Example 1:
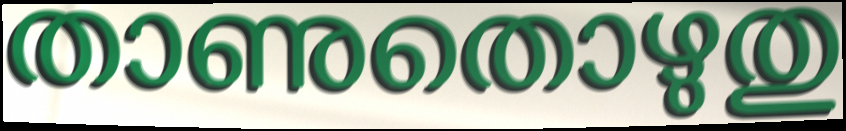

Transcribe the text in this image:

താണുതൊഴുതു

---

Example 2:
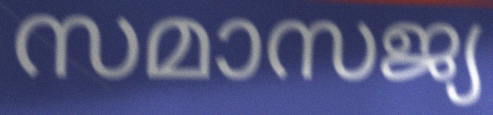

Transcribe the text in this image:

സമാസജ്യ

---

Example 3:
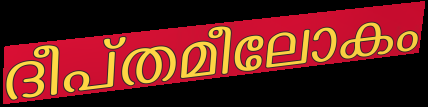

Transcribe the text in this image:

ദീപ്‌തമീലോകം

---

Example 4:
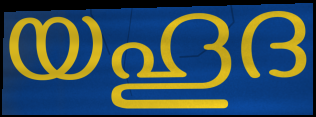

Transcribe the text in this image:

യഹൂദ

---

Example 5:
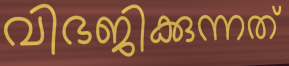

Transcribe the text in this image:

വിഭജിക്കുന്നത്